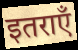
इतराएँ